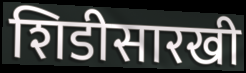
शिडीसारखी